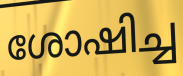
ശോഷിച്ച